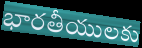
భారతీయులకు